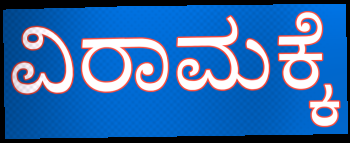
ವಿರಾಮಕ್ಕೆ